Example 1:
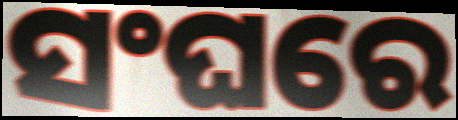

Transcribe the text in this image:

ସଂଘରେ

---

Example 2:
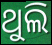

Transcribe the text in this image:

ଥୁଲି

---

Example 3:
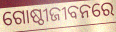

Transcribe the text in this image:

ଗୋଷ୍ଠୀଜୀବନରେ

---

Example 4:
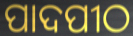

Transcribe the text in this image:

ପାଦପୀଠ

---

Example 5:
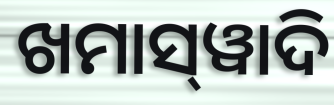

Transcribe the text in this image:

ଖମାସ୍‌ୱାଦି